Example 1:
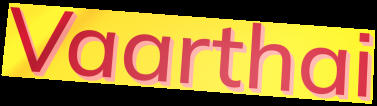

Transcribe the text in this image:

Vaarthai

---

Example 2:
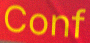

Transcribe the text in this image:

Conf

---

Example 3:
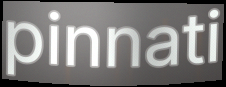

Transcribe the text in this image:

pinnati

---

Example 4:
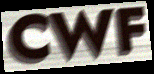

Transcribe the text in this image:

CWF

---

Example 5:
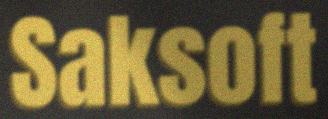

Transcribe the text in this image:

Saksoft